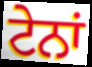
ਟੇਨਾਂ